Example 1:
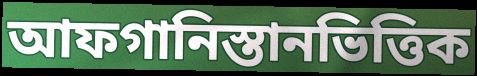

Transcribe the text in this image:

আফগানিস্তানভিত্তিক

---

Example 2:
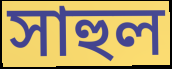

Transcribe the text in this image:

সাহুল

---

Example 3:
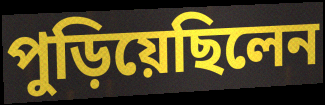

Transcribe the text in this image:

পুড়িয়েছিলেন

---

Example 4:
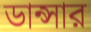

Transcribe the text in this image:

ডান্সার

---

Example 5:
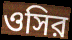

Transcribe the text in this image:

ওসির